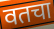
वतचा